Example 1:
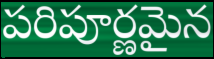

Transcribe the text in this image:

పరిపూర్ణమైన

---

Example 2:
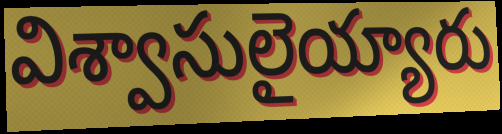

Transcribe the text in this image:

విశ్వాసులైయ్యారు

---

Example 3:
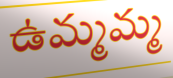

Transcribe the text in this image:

ఉమ్మమ్మ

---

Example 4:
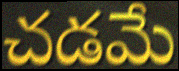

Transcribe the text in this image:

చడమే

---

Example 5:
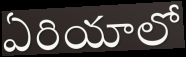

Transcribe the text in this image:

ఏరియాలో